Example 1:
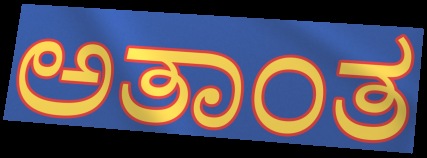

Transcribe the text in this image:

ಅತಾಂತ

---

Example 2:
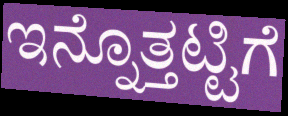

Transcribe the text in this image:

ಇನ್ನೊತ್ತಟ್ಟಿಗೆ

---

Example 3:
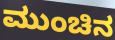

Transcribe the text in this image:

ಮುಂಚಿನ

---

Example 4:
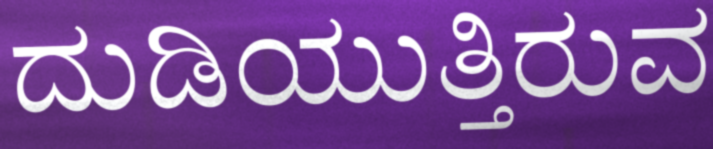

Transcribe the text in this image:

ದುಡಿಯುತ್ತಿರುವ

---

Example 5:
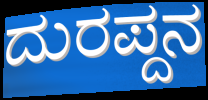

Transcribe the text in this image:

ದುರಪ್ದನ